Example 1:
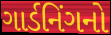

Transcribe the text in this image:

ગાર્ડનિંગનો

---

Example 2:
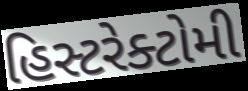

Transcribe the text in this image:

હિસ્ટરેક્ટોમી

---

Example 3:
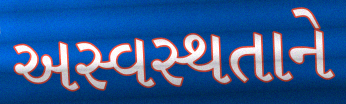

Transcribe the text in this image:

અસ્વસ્થતાને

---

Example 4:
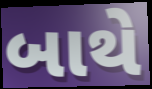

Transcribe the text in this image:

બાથે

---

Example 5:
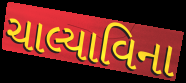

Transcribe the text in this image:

ચાલ્યાવિના